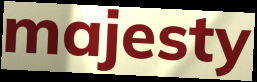
majesty